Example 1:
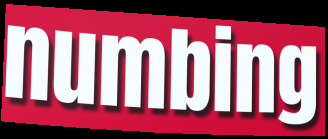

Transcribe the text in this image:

numbing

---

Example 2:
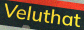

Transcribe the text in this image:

Veluthat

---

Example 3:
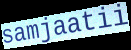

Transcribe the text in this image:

samjaatii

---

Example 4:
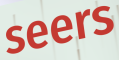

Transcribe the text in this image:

seers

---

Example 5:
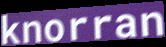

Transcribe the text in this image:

knorran